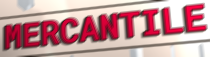
MERCANTILE